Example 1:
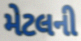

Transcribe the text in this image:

મેટલની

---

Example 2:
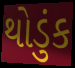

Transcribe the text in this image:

થોડુંક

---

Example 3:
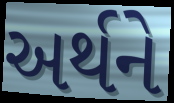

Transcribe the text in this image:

અર્થને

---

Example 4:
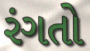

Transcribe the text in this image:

રંગતો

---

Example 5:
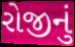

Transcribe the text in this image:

રોજીનું